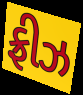
ફ્રીઝ